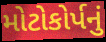
મોટોકોર્પનું